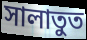
সালাতুত